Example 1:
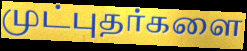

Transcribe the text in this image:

முட்புதர்களை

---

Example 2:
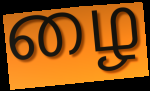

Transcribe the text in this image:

ழை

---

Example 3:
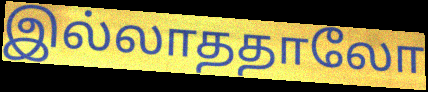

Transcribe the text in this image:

இல்லாததாலோ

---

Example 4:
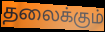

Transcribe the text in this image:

தலைக்கும்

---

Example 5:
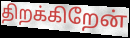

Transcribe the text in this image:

திறக்கிறேன்